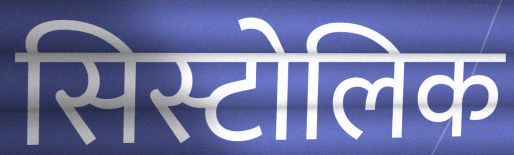
सिस्टोलिक